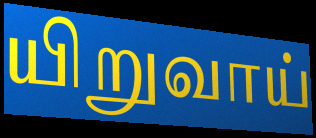
யிறுவாய்